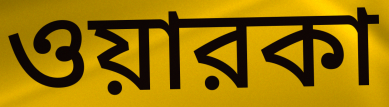
ওয়ারকা